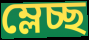
ম্লেচ্ছ